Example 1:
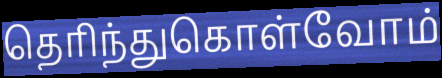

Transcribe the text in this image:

தெரிந்துகொள்வோம்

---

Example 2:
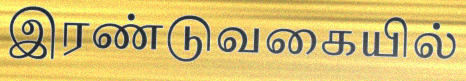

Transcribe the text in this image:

இரண்டுவகையில்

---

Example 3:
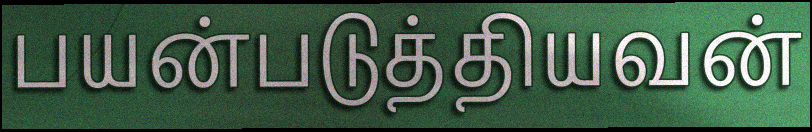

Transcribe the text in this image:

பயன்படுத்தியவன்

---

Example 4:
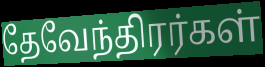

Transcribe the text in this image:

தேவேந்திரர்கள்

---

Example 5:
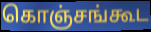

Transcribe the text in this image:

கொஞ்சங்கூட